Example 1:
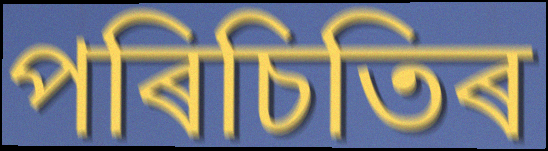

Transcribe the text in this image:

পৰিচিতিৰ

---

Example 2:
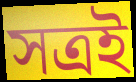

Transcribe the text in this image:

সত্ৰই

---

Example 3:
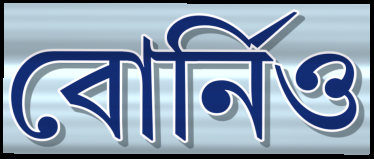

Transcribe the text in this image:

বোৰ্নিও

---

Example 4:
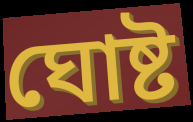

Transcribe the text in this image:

ঘোষ্ট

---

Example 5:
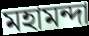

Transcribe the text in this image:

মহামন্দা